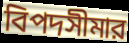
বিপদসীমার